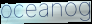
oceanog